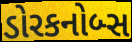
ડોરકનોબ્સ